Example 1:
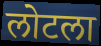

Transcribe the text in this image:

लोटला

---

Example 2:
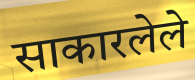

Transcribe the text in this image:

साकारलेले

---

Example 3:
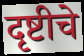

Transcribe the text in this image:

दृष्टीचे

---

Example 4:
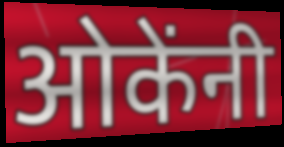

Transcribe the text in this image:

ओकेंनी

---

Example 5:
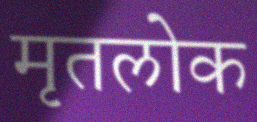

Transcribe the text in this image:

मृतलोक